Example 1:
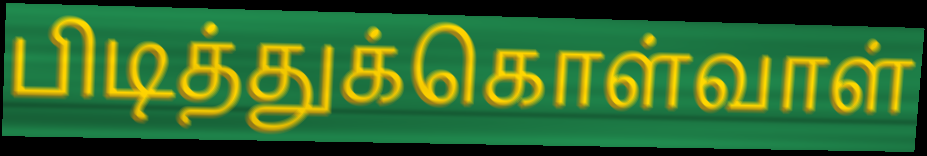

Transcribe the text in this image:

பிடித்துக்கொள்வாள்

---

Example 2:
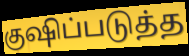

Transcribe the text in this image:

குஷிப்படுத்த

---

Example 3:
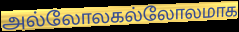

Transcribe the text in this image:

அல்லோலகல்லோலமாக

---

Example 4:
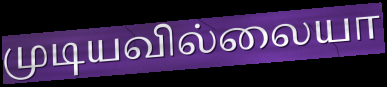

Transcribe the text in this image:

முடியவில்லையா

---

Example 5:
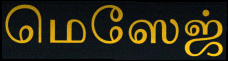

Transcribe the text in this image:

மெஸேஜ்